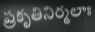
ప్రకృతినిర్మలాః